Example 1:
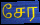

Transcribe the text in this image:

சேர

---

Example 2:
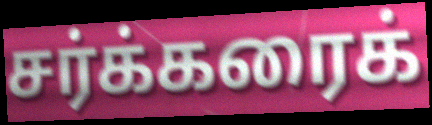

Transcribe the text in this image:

சர்க்கரைக்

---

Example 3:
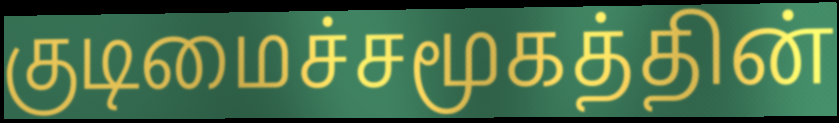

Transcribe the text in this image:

குடிமைச்சமூகத்தின்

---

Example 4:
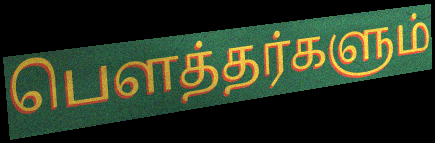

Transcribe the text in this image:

பௌத்தர்களும்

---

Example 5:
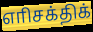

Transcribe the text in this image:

எரிசக்திக்